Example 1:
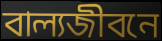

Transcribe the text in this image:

বাল্যজীবনে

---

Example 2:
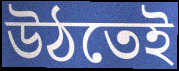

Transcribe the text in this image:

উঠতেই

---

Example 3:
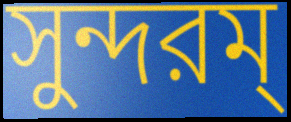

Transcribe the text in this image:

সুন্দরম্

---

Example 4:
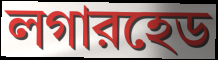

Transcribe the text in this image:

লগারহেড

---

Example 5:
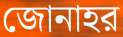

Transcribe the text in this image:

জোনাহর